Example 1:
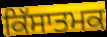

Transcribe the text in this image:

ਕਿੱਸਾਤਮਕ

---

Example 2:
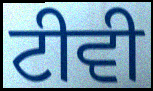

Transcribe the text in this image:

ਟੀਵੀ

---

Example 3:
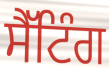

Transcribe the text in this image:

ਸੈੱਟਿੰਗ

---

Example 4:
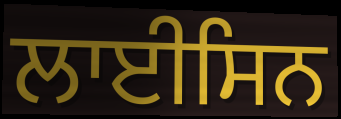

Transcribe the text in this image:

ਲਾਈਸਿਨ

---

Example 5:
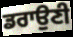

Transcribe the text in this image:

ਡਰਾਉਣੀ